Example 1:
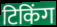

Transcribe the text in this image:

टिकिंग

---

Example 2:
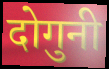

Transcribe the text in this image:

दोगुनी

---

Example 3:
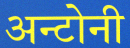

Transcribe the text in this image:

अन्टोनी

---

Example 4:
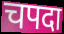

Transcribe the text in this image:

चपदा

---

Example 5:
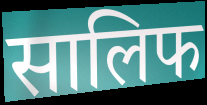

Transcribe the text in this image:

सालिफ